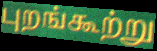
புறங்கூற்று